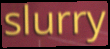
slurry